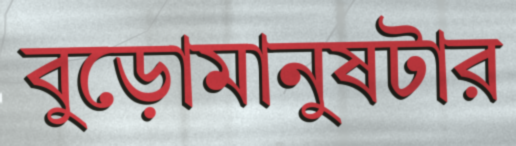
বুড়োমানুষটার